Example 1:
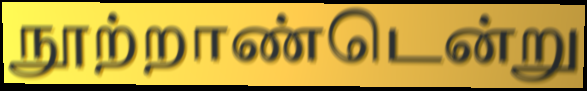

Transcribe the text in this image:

நூற்றாண்டென்று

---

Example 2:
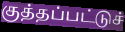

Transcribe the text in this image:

குத்தப்பட்டுச்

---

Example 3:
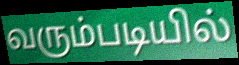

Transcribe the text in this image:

வரும்படியில்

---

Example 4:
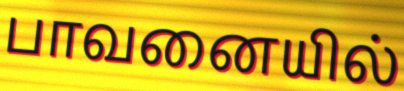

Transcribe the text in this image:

பாவனையில்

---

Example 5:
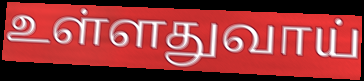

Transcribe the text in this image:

உள்ளதுவாய்